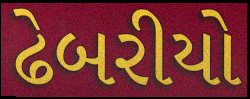
ઢેબરીયો